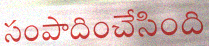
సంపాదించేసింది